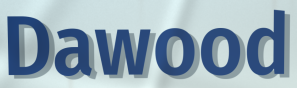
Dawood